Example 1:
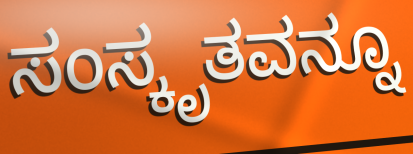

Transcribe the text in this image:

ಸಂಸ್ಕೃತವನ್ನೂ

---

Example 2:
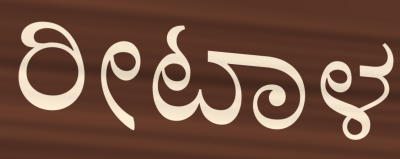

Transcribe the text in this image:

ರೀಟಾಳ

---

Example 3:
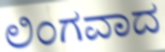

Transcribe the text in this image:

ಲಿಂಗವಾದ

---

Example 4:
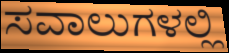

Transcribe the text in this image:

ಸವಾಲುಗಳಲ್ಲಿ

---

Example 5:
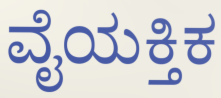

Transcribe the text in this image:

ವೈಯಕ್ತಿಕ